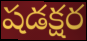
షడక్షర